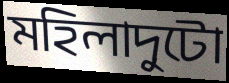
মহিলাদুটো